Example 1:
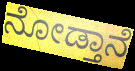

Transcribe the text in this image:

ನೋಡ್ತಾನೆ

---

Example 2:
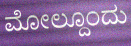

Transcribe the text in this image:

ಮೋಲ್ದೂಂದು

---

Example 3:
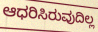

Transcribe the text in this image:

ಆಧರಿಸಿರುವುದಿಲ್ಲ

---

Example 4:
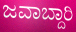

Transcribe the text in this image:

ಜವಾಬ್ದಾರಿ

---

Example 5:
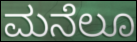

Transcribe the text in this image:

ಮನೆಲೂ